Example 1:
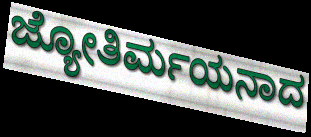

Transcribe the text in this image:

ಜ್ಯೋತಿರ್ಮಯನಾದ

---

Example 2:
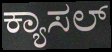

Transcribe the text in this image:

ಕ್ಯಾಸಲ್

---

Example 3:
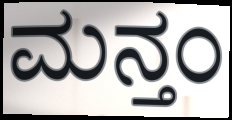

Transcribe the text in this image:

ಮನ್ತಂ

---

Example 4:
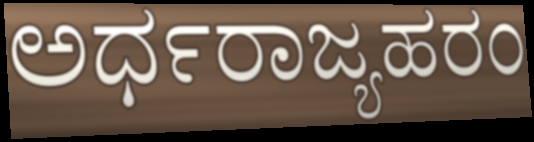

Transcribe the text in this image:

ಅರ್ಧರಾಜ್ಯಹರಂ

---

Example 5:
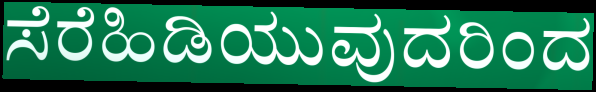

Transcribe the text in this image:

ಸೆರೆಹಿಡಿಯುವುದರಿಂದ